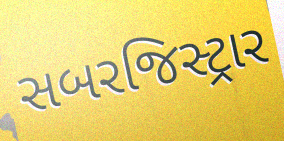
સબરજિસ્ટ્રાર